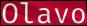
Olavo